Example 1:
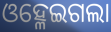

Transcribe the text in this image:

ଓହ୍ଳେଇଗଲା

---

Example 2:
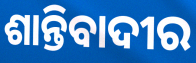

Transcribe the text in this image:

ଶାନ୍ତିବାଦୀର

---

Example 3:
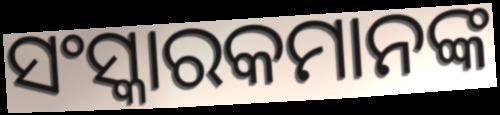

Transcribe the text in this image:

ସଂସ୍କାରକମାନଙ୍କ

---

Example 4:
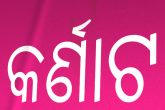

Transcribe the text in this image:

କର୍ଣାଟ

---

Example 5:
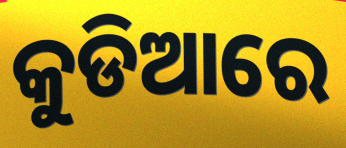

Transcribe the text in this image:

କୁଡିଆରେ